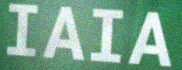
IAIA